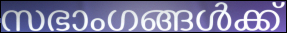
സഭാംഗങ്ങൾക്ക്